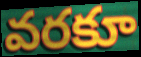
వరకూ